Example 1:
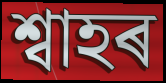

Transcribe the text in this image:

শ্বাহৰ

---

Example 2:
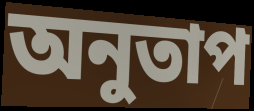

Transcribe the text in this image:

অনুতাপ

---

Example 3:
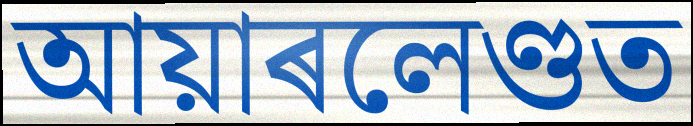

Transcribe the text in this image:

আয়াৰলেণ্ডত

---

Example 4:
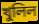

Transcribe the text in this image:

খুলিল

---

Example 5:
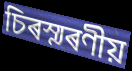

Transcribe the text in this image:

চিৰস্মৰণীয়